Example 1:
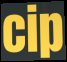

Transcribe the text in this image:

cip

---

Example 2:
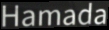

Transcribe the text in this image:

Hamada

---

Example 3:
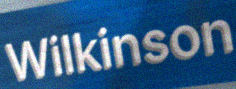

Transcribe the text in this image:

Wilkinson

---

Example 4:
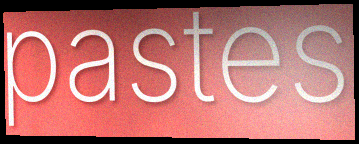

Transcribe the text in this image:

pastes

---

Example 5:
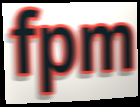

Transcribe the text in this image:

fpm